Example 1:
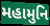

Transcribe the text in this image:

મહામુનિ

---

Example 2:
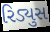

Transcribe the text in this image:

રિડ્યુસ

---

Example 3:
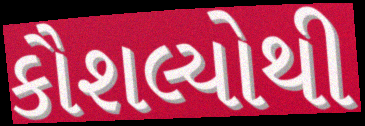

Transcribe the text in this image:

કૌશલ્યોથી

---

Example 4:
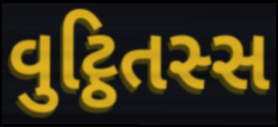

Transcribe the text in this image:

વુટ્ઠિતસ્સ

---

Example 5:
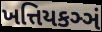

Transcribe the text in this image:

ખત્તિયકઞ્ઞં